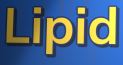
Lipid